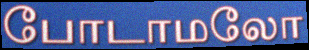
போடாமலோ